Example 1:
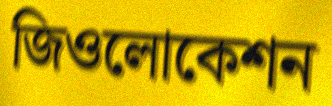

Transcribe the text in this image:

জিওলোকেশন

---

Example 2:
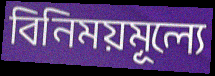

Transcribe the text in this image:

বিনিময়মূল্যে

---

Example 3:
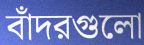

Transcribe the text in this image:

বাঁদরগুলো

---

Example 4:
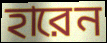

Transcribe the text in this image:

হারেন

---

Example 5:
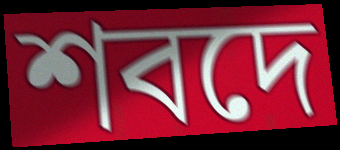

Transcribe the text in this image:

শবদে